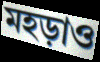
মহড়াও